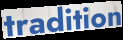
tradition